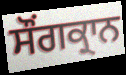
ਸੌਂਗਕ੍ਰਾਨ